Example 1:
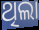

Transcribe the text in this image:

ଥିଲା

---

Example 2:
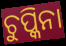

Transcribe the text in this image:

ଚୁପ୍କିନା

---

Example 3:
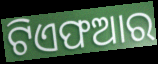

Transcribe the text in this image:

ଟିଏଫଆର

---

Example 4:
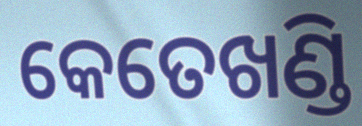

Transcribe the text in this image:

କେତେଖଣ୍ଡି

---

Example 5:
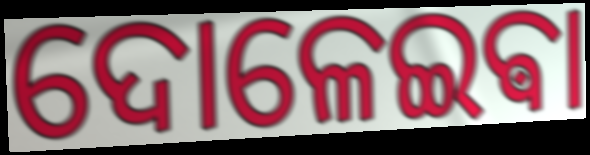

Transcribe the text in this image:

ଦୋଳେଇଵା